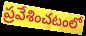
ప్రవేశించటంలో